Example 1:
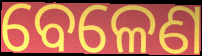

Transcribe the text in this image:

ବେଳେଣ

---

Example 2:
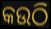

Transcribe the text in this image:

କଉଠି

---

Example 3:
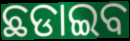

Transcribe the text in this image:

ଛଡାଇବ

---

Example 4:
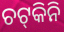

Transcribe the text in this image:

ଚଟ୍‍କିନି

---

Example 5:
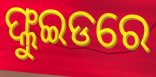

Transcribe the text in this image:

ଫ୍ଲୁଇଡରେ